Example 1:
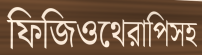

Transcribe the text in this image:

ফিজিওথেরাপিসহ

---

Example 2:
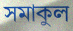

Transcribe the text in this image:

সমাকুল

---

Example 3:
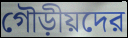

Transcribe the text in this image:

গৌড়ীয়দের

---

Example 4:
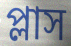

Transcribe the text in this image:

প্লাস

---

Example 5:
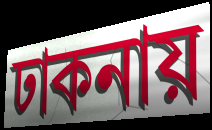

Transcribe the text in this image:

ঢাকনায়